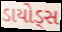
ડાયોડ્સ